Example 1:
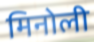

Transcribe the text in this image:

मिनोली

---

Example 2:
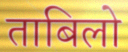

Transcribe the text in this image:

ताबिलो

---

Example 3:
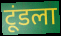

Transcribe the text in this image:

टूंडला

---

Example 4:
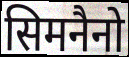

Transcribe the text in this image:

सिमनैनो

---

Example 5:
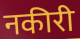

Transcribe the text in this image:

नकीरी